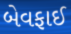
બેવફાઈ